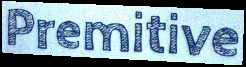
Premitive